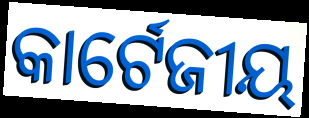
କାର୍ଟେଜୀୟ